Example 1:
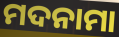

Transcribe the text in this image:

ମଦନାମା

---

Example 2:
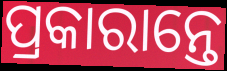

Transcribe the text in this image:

ପ୍ରକାରାନ୍ତେ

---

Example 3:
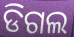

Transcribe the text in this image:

ଡିଗଲ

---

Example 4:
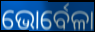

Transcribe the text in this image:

ଭୋର୍ବେଳା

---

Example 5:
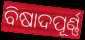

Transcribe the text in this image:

ବିଷାଦପୂର୍ଣ୍ଣ